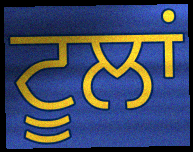
ਟੂਲਾਂ